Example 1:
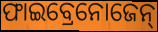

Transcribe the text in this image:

ଫାଇବ୍ରେନୋଜେନ୍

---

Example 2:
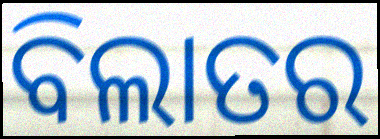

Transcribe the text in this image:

ବିଲାତର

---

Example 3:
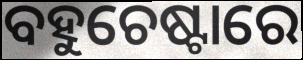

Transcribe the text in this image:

ବହୁଚେଷ୍ଟାରେ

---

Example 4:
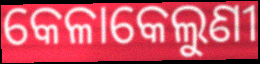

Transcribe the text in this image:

କେଳାକେଲୁଣୀ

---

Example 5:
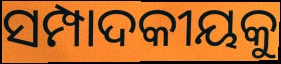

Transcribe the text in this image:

ସମ୍ପାଦକୀୟକୁ